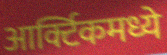
आर्क्टिकमध्ये